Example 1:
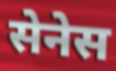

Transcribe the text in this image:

सेनेस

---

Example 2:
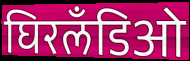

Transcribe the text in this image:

घिरलँडिओ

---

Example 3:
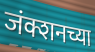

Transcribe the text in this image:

जंक्शनच्या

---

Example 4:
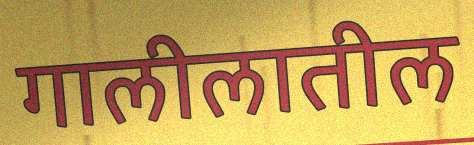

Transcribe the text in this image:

गालीलातील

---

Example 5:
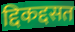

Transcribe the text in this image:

द्दिकद्दसत